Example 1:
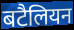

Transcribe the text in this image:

बटैलियन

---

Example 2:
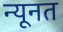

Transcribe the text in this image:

न्यूनत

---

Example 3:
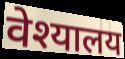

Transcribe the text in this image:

वेश्यालय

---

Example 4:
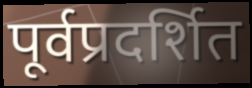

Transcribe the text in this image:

पूर्वप्रदर्शित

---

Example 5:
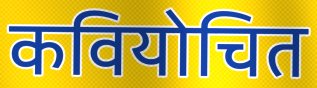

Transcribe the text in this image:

कवियोचित